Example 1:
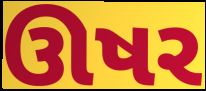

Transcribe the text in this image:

ઊષર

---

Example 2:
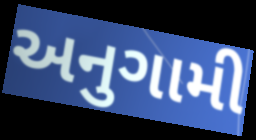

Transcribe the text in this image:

અનુગામી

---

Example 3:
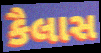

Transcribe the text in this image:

કૈલાસ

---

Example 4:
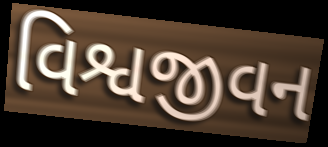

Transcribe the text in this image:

વિશ્વજીવન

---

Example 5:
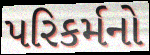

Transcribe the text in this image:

પરિકર્મનો